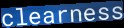
clearness